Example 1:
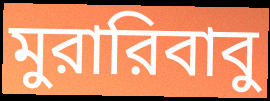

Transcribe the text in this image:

মুরারিবাবু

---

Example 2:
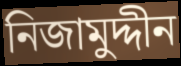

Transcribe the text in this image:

নিজামুদ্দীন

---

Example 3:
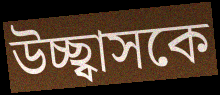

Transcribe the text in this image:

উচ্ছ্বাসকে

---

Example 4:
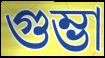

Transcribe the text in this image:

গুম্ভা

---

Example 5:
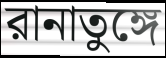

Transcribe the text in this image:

রানাতুঙ্গে